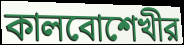
কালবোশেখীর